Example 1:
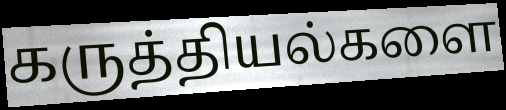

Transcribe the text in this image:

கருத்தியல்களை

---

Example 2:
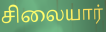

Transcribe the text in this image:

சிலையார்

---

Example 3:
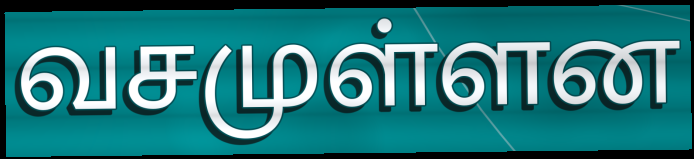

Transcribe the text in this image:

வசமுள்ளன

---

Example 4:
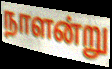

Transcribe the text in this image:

நாளன்று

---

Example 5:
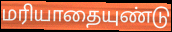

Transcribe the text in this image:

மரியாதையுண்டு